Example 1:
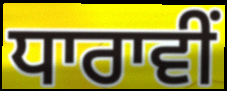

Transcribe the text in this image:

ਧਾਰਾਵੀਂ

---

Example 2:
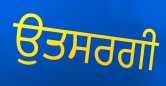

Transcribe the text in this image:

ਉਤਸਰਗੀ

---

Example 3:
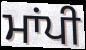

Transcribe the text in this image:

ਮਾਂਪੀ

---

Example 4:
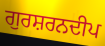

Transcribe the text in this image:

ਗੁਰਸ਼ਰਨਦੀਪ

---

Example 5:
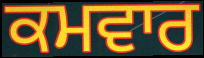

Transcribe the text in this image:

ਕਮਵਾਰ